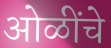
ओळींचे